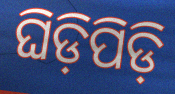
ଘିଡ଼ିପିଡ଼ି